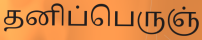
தனிப்பெருஞ்